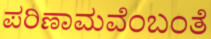
ಪರಿಣಾಮವೆಂಬಂತೆ